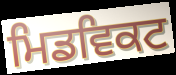
ਮਿਡਵਿਕਟ